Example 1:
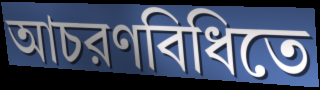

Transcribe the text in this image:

আচরণবিধিতে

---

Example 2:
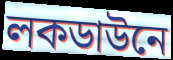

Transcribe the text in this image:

লকডাউনে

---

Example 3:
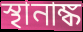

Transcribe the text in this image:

স্থানাঙ্ক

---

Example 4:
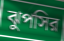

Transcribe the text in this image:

ঝুপসির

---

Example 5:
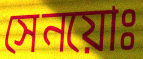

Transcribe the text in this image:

সেনয়োঃ